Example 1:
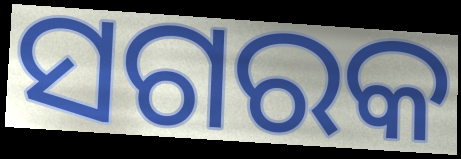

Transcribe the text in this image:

ସଗରକ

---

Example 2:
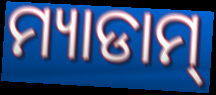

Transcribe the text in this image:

ମ୍ୟାଡାମ୍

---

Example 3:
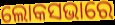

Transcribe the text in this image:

ଲୋକସଭାରେ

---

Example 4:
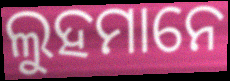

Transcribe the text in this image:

ଲୁହମାନେ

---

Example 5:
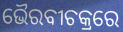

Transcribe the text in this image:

ଭୈରବୀଚକ୍ରରେ